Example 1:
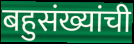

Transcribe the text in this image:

बहुसंख्यांची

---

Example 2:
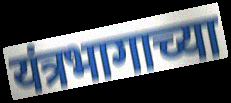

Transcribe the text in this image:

यंत्रभागाच्या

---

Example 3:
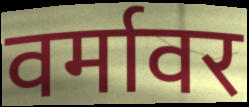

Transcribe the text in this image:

वर्मावर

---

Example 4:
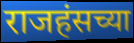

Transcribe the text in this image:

राजहंसच्या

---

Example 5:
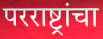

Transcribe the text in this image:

परराष्ट्रांचा